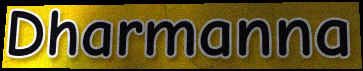
Dharmanna